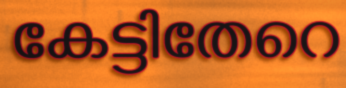
കേട്ടിതേറെ